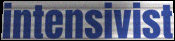
intensivist